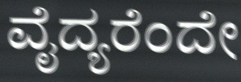
ವೈದ್ಯರೆಂದೇ